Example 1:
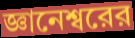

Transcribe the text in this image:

জ্ঞানেশ্বরের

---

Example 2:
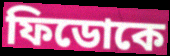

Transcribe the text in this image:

ফিডোকে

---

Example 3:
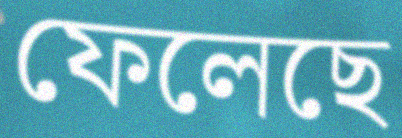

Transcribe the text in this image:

ফেলেছে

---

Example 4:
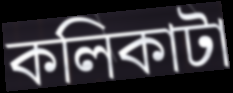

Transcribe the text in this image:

কলিকাটা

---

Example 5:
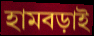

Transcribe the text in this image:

হামবড়াই